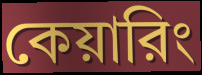
কেয়ারিং